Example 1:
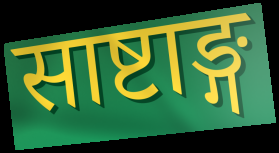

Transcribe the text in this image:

साष्टाङ्ग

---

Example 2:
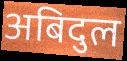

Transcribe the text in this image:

अबिदुल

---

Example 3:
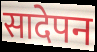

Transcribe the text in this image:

सादेपन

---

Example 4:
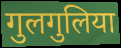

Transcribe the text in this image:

गुलगुलिया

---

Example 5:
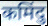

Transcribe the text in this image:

कमिंदु